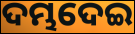
ଦମ୍ଭଦେଇ